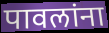
पावलांना